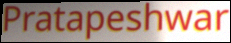
Pratapeshwar